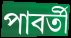
পাবর্তী